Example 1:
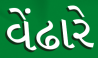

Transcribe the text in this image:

વેંઢારે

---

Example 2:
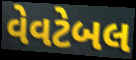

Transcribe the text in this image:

વેવટેબલ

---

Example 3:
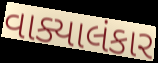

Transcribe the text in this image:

વાક્યાલંકાર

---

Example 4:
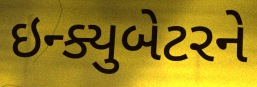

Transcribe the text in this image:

ઇન્ક્યુબેટરને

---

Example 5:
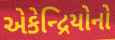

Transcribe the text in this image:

એકેન્દ્રિયોનો